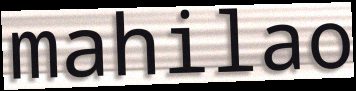
mahilao